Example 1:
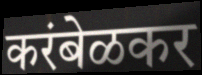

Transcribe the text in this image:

करंबेळकर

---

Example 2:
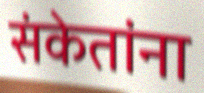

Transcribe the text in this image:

संकेतांना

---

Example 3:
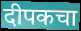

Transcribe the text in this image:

दीपकचा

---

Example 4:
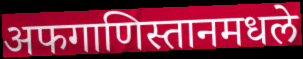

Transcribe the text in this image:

अफगाणिस्तानमधले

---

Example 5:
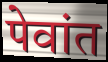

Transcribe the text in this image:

पेवांत